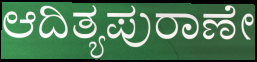
ಆದಿತ್ಯಪುರಾಣೇ